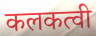
कलकत्वी